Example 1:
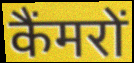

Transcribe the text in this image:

कैंमरों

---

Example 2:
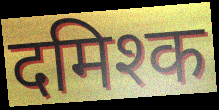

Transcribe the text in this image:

दमिश्क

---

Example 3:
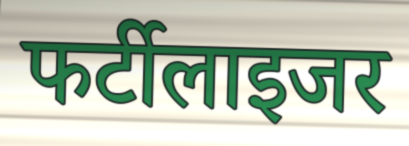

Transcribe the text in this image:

फर्टीलाइजर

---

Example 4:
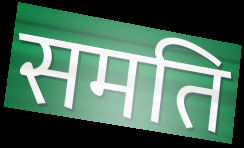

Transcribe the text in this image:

समति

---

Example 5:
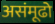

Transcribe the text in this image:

असंमूढो